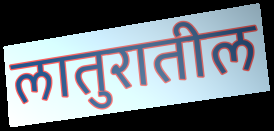
लातुरातील